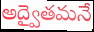
అద్వైతమనే